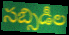
సబ్సిడీల